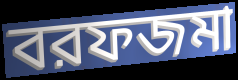
বরফজমা